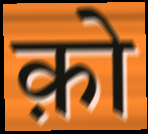
क़ो